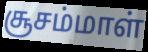
சூசம்மாள்